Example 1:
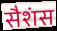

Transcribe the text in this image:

सैशंस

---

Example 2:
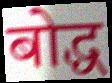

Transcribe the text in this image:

बोद्ध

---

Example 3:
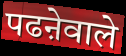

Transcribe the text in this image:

पढऩेवाले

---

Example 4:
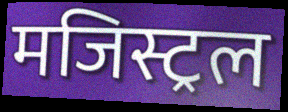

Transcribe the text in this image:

मजिस्ट्रल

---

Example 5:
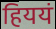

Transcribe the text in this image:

हिययं